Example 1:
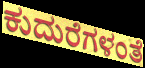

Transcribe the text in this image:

ಕುದುರೆಗಳಂತೆ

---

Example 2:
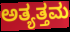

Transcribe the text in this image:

ಅತ್ಯತ್ತಮ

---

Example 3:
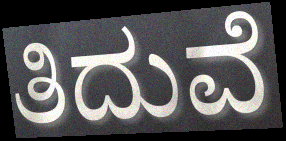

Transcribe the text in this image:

ತಿದುವೆ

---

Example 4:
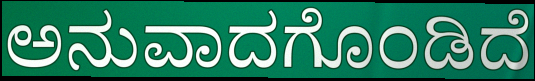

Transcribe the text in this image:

ಅನುವಾದಗೊಂಡಿದೆ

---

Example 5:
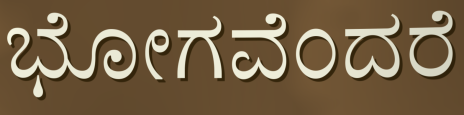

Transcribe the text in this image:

ಭೋಗವೆಂದರೆ